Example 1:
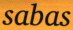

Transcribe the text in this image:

sabas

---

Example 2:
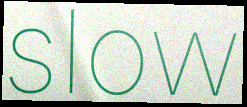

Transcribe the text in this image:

slow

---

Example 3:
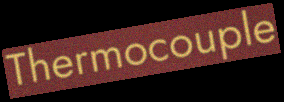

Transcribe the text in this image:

Thermocouple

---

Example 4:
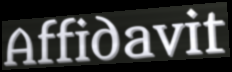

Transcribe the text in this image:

Affidavit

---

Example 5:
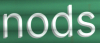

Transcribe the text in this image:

nods